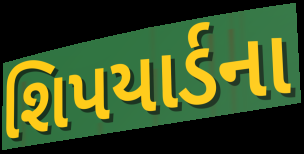
શિપયાર્ડના